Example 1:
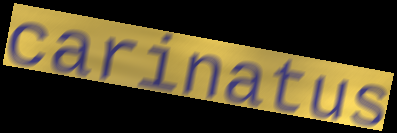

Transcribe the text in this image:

carinatus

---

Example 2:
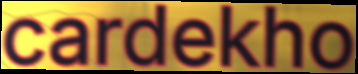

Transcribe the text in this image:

cardekho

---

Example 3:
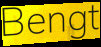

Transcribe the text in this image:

Bengt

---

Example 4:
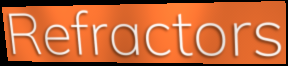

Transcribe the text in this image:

Refractors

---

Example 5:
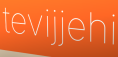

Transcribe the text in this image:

tevijjehi